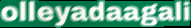
olleyadaagali